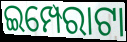
ଇମ୍ପେରାଟା